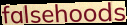
falsehoods